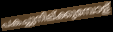
പകച്ചുനില്ക്കുമ്പോള്